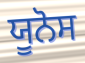
ਯੂਨੋਸ